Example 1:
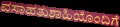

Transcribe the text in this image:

ವಸಾಹತುಶಾಹಿಯೊಂದಿಗೆ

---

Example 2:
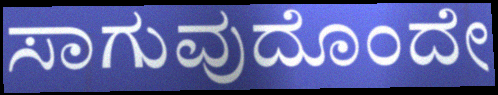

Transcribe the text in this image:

ಸಾಗುವುದೊಂದೇ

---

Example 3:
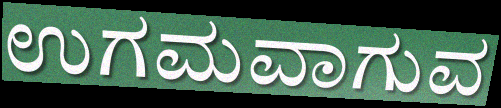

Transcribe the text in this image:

ಉಗಮವಾಗುವ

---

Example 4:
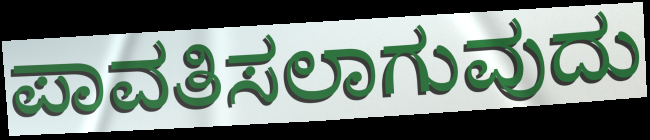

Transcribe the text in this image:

ಪಾವತಿಸಲಾಗುವುದು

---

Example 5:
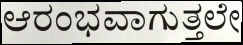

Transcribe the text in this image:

ಆರಂಭವಾಗುತ್ತಲೇ